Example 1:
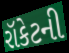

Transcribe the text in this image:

રૉકેટની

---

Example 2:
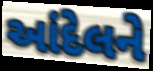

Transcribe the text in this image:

આંદેલને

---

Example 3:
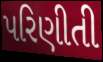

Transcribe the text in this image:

પરિણીતી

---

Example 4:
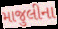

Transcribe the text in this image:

માજુલીના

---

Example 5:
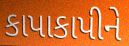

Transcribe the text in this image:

કાપાકાપીને